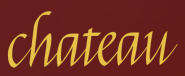
chateau